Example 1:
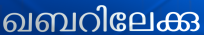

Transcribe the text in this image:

ഖബറിലേക്കു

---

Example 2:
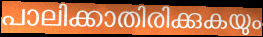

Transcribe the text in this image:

പാലിക്കാതിരിക്കുകയും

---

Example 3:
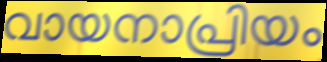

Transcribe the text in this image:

വായനാപ്രിയം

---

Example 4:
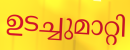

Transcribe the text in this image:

ഉടച്ചുമാറ്റി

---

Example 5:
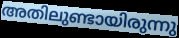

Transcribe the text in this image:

അതിലുണ്ടായിരുന്നു